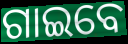
ଗାଇବେ